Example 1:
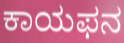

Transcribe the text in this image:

ಕಾಯಫನ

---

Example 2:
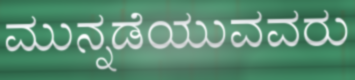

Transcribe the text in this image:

ಮುನ್ನಡೆಯುವವರು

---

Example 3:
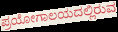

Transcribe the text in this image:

ಪ್ರಯೋಗಾಲಯದಲ್ಲಿರುವ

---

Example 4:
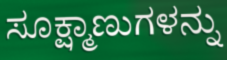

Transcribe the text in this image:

ಸೂಕ್ಷ್ಮಾಣುಗಳನ್ನು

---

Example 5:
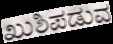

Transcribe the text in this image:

ಖುಶಿಪಡುವ